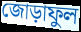
জোড়াফুল